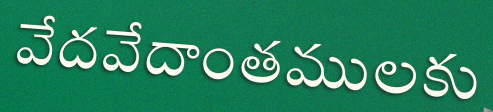
వేదవేదాంతములకు